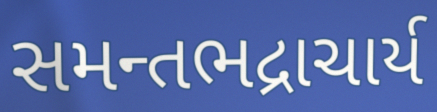
સમન્તભદ્રાચાર્ય